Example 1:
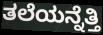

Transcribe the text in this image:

ತಲೆಯನ್ನೆತ್ತಿ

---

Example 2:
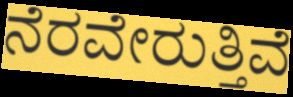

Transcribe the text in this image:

ನೆರವೇರುತ್ತಿವೆ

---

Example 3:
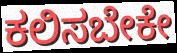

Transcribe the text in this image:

ಕಲಿಸಬೇಕೇ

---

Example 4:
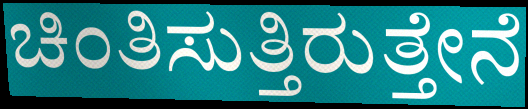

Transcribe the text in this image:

ಚಿಂತಿಸುತ್ತಿರುತ್ತೇನೆ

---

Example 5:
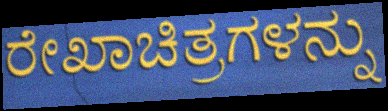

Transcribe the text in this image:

ರೇಖಾಚಿತ್ರಗಳನ್ನು